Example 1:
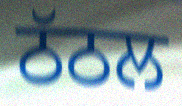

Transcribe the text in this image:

ਠੱਠਲ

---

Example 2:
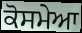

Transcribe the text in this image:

ਕੋਸਮੇਆ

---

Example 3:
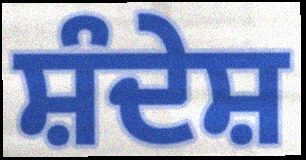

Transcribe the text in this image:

ਸ਼ੰਦੇਸ਼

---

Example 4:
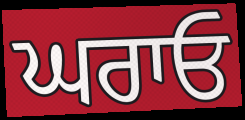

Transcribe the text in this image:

ਘਰਾਓ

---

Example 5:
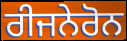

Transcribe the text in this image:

ਰੀਜਨੇਰੋਨ